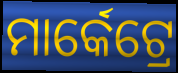
ମାର୍କେଟ୍ରେ